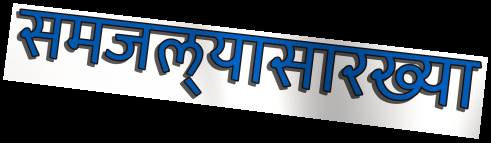
समजल्यासारख्या